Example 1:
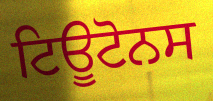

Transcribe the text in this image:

ਟਿਊਟੋਨਸ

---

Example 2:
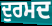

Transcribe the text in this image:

ਦੁਰਮਦ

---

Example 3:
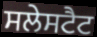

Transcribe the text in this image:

ਸਲੇਸਟੈਟ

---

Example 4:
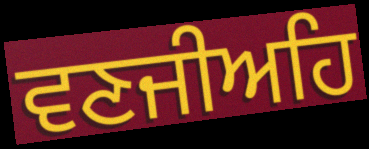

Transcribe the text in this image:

ਵਣਜੀਅਹਿ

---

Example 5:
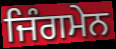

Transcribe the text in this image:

ਜਿੰਗਮੇਨ